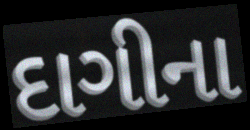
દાગીના